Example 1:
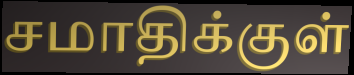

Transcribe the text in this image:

சமாதிக்குள்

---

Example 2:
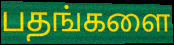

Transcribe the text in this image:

பதங்களை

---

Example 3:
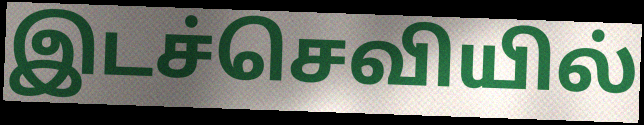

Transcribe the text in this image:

இடச்செவியில்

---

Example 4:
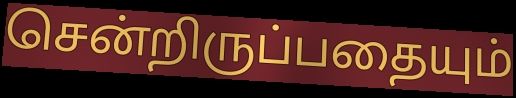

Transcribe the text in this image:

சென்றிருப்பதையும்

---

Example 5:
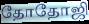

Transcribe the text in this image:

தோதோஜி